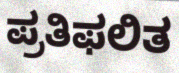
ಪ್ರತಿಫಲಿತ